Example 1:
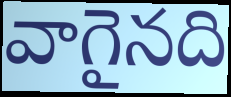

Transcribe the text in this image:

వాగైనది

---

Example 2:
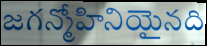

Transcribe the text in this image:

జగన్మోహినియైనది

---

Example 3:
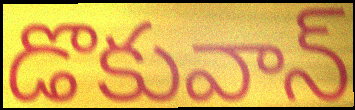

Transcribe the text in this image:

డొకువాన్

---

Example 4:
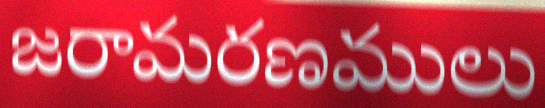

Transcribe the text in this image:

జరామరణములు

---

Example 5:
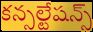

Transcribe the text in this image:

కన్సల్టేషన్స్